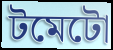
টমেটো